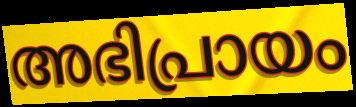
അഭിപ്രായം